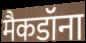
मैकडॉना